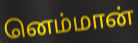
னெம்மான்